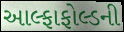
આલ્ફાફોલ્ડની